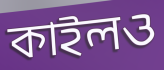
কাইলও